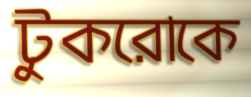
টুকরোকে